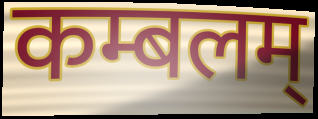
कम्बलम्